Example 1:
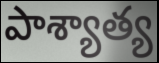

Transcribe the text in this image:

పాశ్యాత్య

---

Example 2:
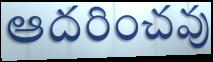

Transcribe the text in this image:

ఆదరించవు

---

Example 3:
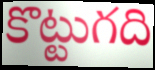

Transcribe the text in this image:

కొట్టుగది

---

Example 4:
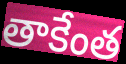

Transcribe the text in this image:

తాకేంత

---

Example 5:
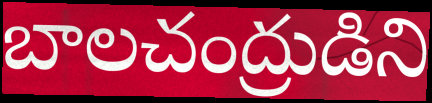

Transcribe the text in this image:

బాలచంద్రుడిని